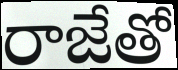
రాజేతో